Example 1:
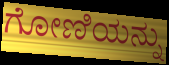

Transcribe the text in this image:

ಗೋಣಿಯನ್ನು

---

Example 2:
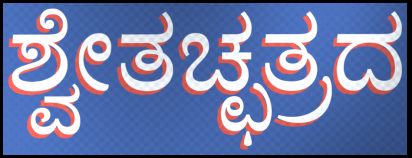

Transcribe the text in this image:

ಶ್ವೇತಚ್ಛತ್ರದ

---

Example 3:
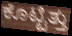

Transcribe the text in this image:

ಕೊಟ್ಟಿತ್ತು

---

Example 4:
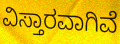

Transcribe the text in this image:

ವಿಸ್ತಾರವಾಗಿವೆ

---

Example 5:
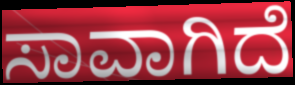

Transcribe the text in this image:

ಸಾವಾಗಿದೆ